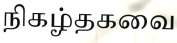
நிகழ்தகவை